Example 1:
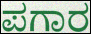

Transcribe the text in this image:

ಪಗಾರ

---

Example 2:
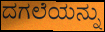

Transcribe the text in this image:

ದಗಲೆಯನ್ನು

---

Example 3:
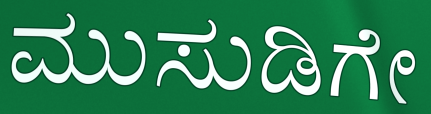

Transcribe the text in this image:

ಮುಸುಡಿಗೇ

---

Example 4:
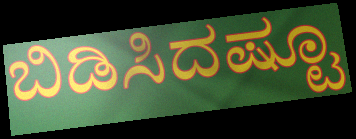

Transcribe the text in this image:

ಬಿಡಿಸಿದಷ್ಟೂ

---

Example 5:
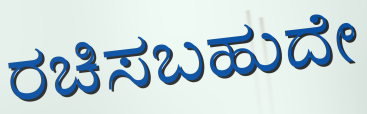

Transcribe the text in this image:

ರಚಿಸಬಹುದೇ